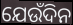
ଯେଉଁଦିନ